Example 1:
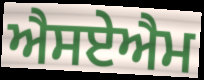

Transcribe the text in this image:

ਐਸਏਐਮ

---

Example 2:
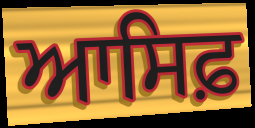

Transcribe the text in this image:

ਆਸਿਫ਼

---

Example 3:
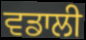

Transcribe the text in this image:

ਵਡਾਲੀ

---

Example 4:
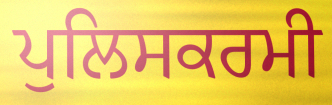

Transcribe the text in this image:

ਪੁਲਿਸਕਰਮੀ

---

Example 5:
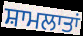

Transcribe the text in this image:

ਸ਼ਾਮਲਾਤਾਂ